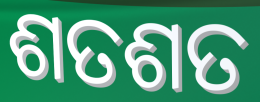
ଶତଶତ